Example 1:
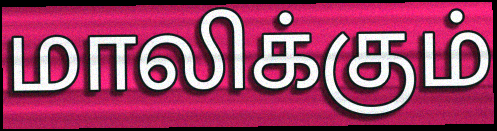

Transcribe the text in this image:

மாலிக்கும்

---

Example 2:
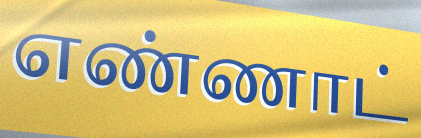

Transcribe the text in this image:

எண்ணாட்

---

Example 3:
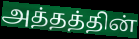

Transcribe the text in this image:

அத்தத்தின்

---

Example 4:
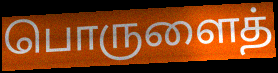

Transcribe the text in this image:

பொருளைத்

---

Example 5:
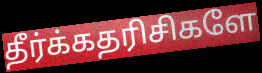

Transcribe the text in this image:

தீர்க்கதரிசிகளே